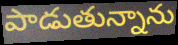
పాడుతున్నాను